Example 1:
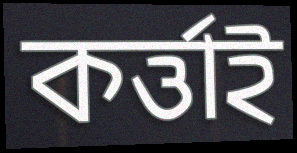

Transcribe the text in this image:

কৰ্ত্তাই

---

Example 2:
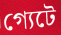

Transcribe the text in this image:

গ্যেটে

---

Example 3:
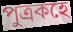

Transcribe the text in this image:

পুত্ৰকহে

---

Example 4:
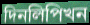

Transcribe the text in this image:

দিনলিপিখন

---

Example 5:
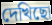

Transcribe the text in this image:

দেখিছো